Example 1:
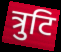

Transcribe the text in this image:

त्रुटि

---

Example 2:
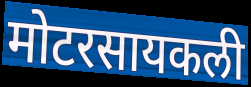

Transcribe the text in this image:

मोटरसायकली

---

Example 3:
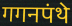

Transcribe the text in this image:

गगनपंथे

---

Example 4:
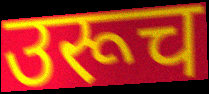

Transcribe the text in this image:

उरूच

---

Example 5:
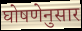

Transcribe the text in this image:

घोषणेनुसार